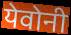
येवोनी